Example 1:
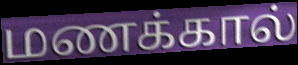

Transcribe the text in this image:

மணக்கால்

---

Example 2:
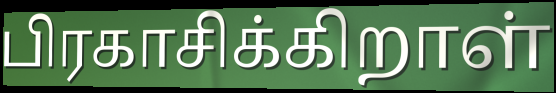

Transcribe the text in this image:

பிரகாசிக்கிறாள்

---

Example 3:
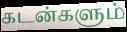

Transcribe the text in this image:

கடன்களும்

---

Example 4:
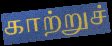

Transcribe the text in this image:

காற்றுச்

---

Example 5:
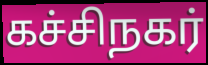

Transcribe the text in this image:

கச்சிநகர்